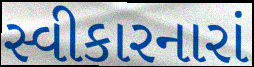
સ્વીકારનારાં